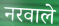
नरवाले